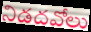
నిడదవోలు